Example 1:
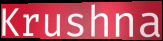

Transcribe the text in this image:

Krushna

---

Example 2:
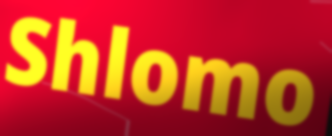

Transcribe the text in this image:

Shlomo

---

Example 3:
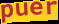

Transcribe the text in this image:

puer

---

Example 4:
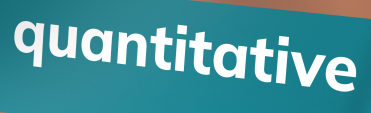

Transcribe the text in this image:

quantitative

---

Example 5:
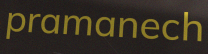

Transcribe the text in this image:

pramanech